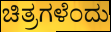
ಚಿತ್ರಗಳೆಂದು